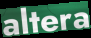
altera